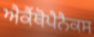
ਐਕੈਂਥੋਪੈਨੈਕਸ